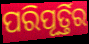
ପରିପୂର୍ତ୍ତିର